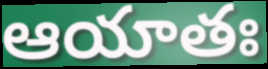
ఆయాతః